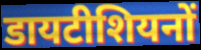
डायटीशियनों